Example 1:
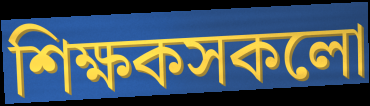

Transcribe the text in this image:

শিক্ষকসকলো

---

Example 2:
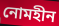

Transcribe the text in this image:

নোমহীন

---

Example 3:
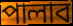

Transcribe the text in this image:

পালাব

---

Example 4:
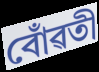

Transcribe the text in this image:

বোঁৱতী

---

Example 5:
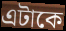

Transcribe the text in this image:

এটাকে